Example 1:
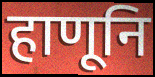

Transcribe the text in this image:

हाणूनि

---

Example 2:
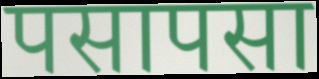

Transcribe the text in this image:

पसापसा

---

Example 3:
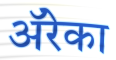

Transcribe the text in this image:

ॲरेका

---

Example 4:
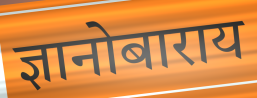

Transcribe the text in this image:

ज्ञानोबाराय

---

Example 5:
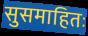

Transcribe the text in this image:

सुसमाहितः